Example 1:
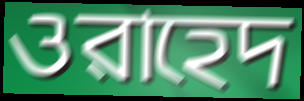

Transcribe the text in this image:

ওৱাহেদ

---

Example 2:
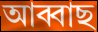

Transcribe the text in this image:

আব্বাছ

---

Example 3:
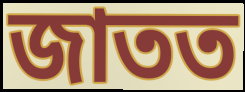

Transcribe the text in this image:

জাতত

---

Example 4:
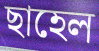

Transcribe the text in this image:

ছাহেল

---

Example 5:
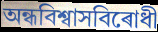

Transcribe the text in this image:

অন্ধবিশ্বাসবিৰোধী